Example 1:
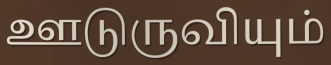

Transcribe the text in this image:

ஊடுருவியும்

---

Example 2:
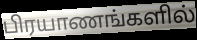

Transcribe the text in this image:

பிரயாணங்களில்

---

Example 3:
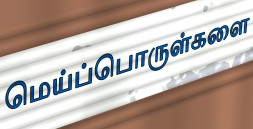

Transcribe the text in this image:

மெய்ப்பொருள்களை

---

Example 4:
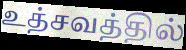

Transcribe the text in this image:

உத்சவத்தில்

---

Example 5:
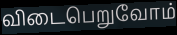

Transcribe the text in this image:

விடைபெறுவோம்